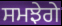
ਸਮਝੇਗੇ